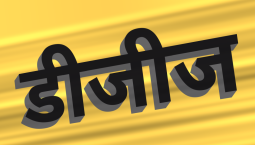
डीजीज